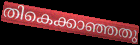
തികെക്കാഞ്ഞതു